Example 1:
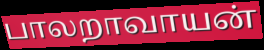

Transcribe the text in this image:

பாலறாவாயன்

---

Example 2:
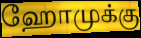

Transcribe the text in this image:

ஹோமுக்கு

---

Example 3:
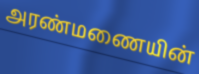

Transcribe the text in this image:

அரண்மணையின்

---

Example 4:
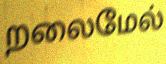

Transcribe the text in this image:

றலைமேல்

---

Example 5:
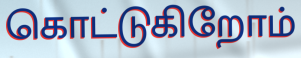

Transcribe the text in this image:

கொட்டுகிறோம்